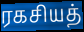
ரகசியத்